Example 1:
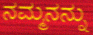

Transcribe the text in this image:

ನಮ್ಮನನ್ನು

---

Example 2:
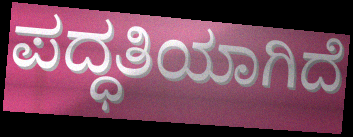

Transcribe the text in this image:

ಪದ್ಧತಿಯಾಗಿದೆ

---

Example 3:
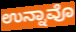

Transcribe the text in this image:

ಉನ್ನಾವೊ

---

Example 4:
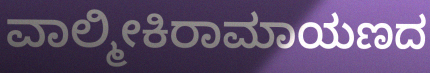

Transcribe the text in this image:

ವಾಲ್ಮೀಕಿರಾಮಾಯಣದ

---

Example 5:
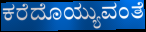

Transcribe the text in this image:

ಕರೆದೊಯ್ಯುವಂತೆ